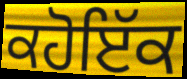
ਕਹੋਇੱਕ